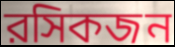
রসিকজন